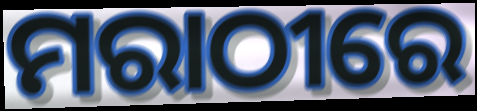
ମରାଠୀରେ